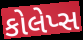
કોલેપ્સ